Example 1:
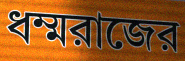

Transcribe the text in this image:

ধম্মরাজের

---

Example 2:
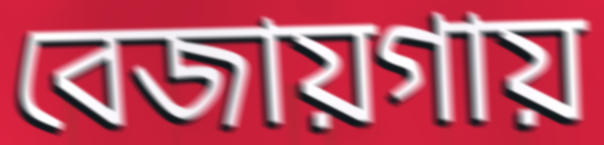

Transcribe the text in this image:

বেজায়গায়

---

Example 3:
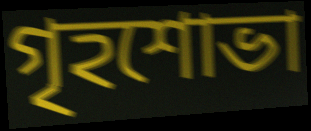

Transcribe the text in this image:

গৃহশোভা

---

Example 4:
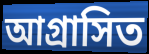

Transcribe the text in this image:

আগ্রাসিত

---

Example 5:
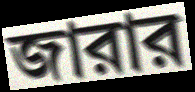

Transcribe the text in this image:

জারার